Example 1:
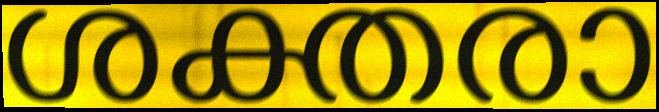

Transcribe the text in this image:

ശക്തരാ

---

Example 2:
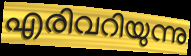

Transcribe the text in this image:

എരിവറിയുന്നു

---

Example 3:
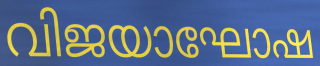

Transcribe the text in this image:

വിജയാഘോഷ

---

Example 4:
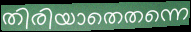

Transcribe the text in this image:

തിരിയാതെതന്നെ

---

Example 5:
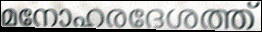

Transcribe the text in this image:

മനോഹരദേശത്ത്